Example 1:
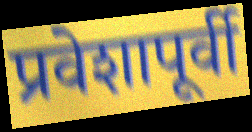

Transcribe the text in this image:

प्रवेशापूर्वी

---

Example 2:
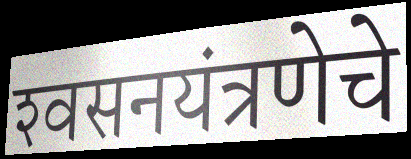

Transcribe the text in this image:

श्वसनयंत्रणेचे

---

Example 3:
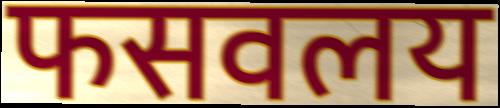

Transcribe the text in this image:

फसवलय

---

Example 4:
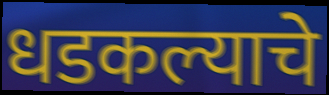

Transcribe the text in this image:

धडकल्याचे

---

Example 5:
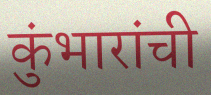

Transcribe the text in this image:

कुंभारांची